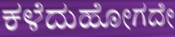
ಕಳೆದುಹೋಗದೇ